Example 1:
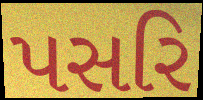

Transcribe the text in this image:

પસરિ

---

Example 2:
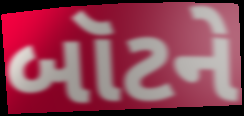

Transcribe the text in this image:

બૉટને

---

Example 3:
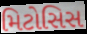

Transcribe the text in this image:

મિટોસિસ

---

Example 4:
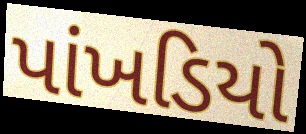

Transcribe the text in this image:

પાંખડિયો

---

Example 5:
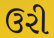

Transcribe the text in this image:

ઉરી